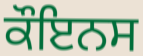
ਕੌਇਨਸ